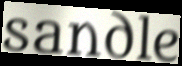
sandle